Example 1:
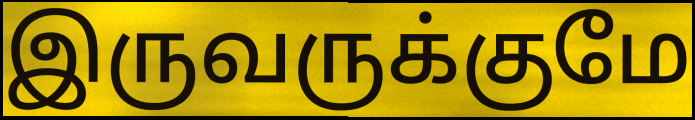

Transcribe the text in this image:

இருவருக்குமே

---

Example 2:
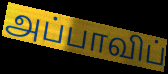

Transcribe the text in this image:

அப்பாவிப்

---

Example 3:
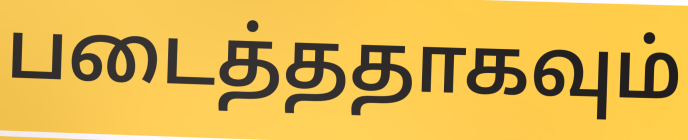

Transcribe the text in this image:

படைத்ததாகவும்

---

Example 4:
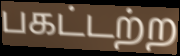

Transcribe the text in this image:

பகட்டற்ற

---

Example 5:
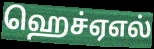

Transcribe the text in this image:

ஹெச்ஏஎல்